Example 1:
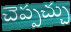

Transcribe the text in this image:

చెప్పచ్చు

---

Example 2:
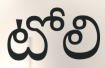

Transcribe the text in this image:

టోలి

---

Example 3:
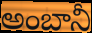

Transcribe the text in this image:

అంబానీ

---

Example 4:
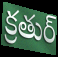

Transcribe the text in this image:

క్రతుర్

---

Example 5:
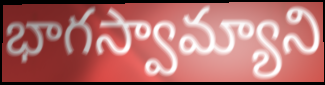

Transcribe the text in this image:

భాగస్వామ్యాని